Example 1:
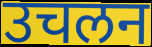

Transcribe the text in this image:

उचलन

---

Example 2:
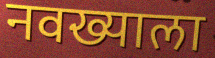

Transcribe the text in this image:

नवख्याला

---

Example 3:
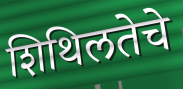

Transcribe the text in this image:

शिथिलतेचे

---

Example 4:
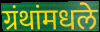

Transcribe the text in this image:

ग्रंथांमधले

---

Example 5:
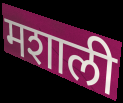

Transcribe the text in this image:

मशाली